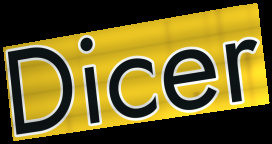
Dicer